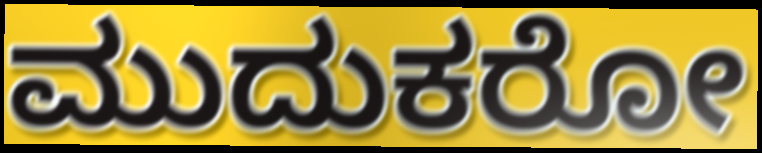
ಮುದುಕರೋ